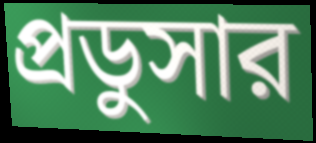
প্রডুসার